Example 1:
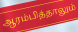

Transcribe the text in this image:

ஆரம்பித்தாலும்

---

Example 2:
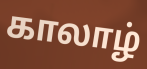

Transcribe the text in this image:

காலாழ்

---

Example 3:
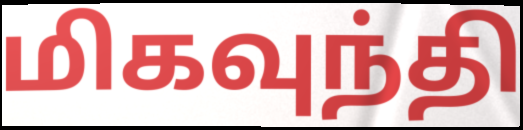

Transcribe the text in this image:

மிகவுந்தி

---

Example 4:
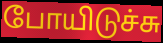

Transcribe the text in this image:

போயிடுச்சு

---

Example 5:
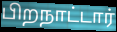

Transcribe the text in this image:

பிறநாட்டார்